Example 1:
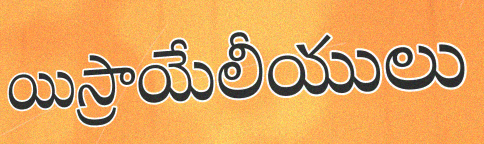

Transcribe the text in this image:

యిస్రాయేలీయులు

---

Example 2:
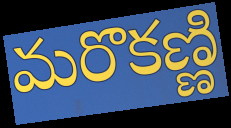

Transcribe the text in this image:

మరొకణ్ణి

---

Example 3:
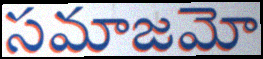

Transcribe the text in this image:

సమాజమో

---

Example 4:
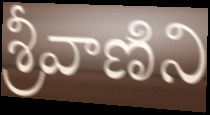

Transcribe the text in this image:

శ్రీవాణిని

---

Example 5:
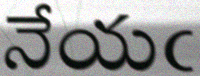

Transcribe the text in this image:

నేయఁ